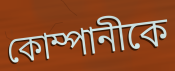
কোম্পানীকে